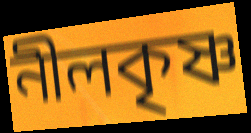
নীলকৃষ্ণ